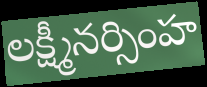
లక్ష్మీనర్సింహ